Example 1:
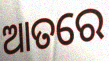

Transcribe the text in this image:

ଆତରେ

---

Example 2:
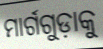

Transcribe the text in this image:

ମାର୍ଗଗୁଡ଼ାକୁ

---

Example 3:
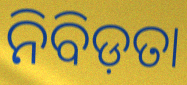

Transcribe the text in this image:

ନିବିଡ଼ତା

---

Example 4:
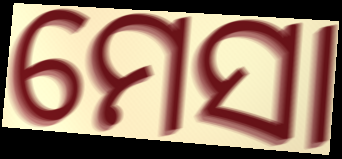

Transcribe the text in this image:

ମେସା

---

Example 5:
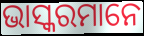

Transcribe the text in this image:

ଭାସ୍କରମାନେ